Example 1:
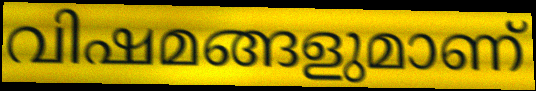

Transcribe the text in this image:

വിഷമങ്ങളുമാണ്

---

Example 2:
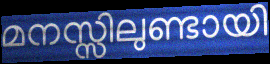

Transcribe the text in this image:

മനസ്സിലുണ്ടായി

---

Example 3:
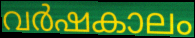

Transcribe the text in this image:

വർഷകാലം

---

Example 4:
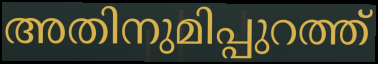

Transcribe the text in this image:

അതിനുമിപ്പുറത്ത്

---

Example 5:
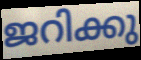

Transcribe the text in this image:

ജറിക്കു